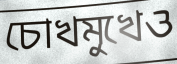
চোখমুখেও